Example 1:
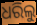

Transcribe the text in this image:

ଧରିଲୁ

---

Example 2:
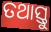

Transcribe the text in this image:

ତଥାସ୍ତୁ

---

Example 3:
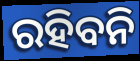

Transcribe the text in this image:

ରହିବନି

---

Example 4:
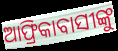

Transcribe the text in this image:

ଆଫ୍ରିକାବାସୀଙ୍କୁ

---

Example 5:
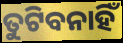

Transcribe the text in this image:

ତୁଟିବନାହିଁ